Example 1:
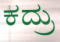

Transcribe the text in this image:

ಕದ್ರು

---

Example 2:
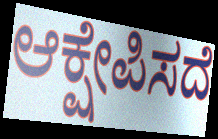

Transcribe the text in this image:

ಆಕ್ಷೇಪಿಸದೆ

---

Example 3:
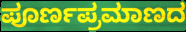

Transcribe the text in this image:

ಪೂರ್ಣಪ್ರಮಾಣದ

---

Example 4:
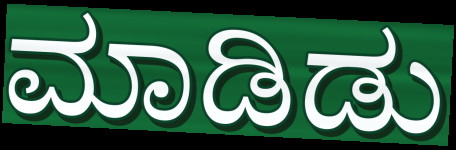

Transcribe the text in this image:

ಮಾಡಿಡು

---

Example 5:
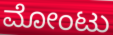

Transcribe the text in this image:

ಮೋಂಟು